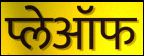
प्लेऑफ